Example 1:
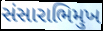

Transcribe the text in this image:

સંસારાભિમુખ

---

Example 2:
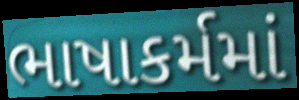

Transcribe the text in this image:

ભાષાકર્મમાં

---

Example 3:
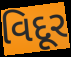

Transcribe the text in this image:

વિદૂર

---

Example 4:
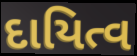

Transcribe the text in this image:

દાયિત્વ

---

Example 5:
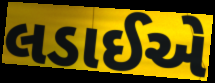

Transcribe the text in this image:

લડાઈએ